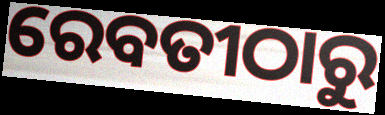
ରେବତୀଠାରୁ